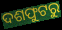
ଦଶଫୁଟରୁ